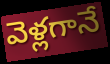
వెళ్లగానే